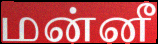
மன்னீ